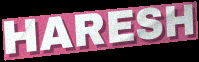
HARESH